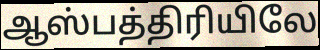
ஆஸ்பத்திரியிலே